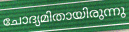
ചോദ്യമിതായിരുന്നു